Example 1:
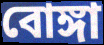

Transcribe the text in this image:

বোঙ্গা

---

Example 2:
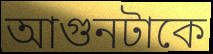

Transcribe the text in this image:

আগুনটাকে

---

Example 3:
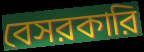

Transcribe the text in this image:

বেসরকারি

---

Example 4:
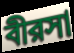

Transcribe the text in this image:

বীরসা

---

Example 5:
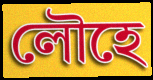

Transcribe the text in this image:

লৌহে